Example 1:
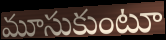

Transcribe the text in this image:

మూసుకుంటూ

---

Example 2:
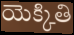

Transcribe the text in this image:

యెక్కితి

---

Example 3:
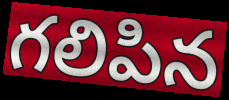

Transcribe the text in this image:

గలిపిన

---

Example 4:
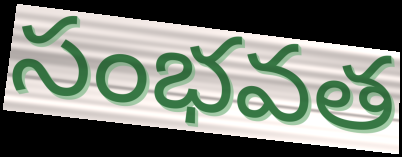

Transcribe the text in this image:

సంభవత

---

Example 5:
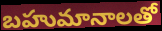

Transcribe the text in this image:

బహుమానాలతో